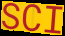
SCI